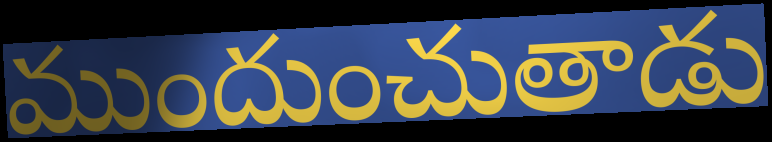
ముందుంచుతాడు